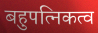
बहुपत्निकत्व